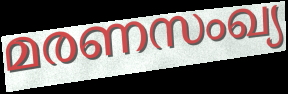
മരണസംഖ്യ